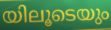
യിലൂടെയും